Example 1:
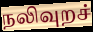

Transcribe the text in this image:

நலிவுறச்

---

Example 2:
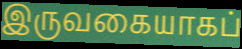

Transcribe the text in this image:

இருவகையாகப்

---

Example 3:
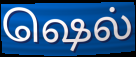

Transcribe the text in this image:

ஷெல்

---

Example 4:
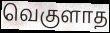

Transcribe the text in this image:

வெகுளாத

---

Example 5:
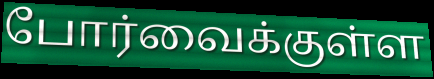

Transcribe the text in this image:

போர்வைக்குள்ள